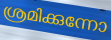
ശ്രമിക്കുന്നോ